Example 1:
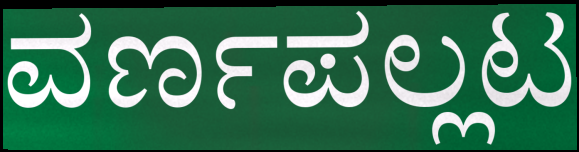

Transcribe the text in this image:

ವರ್ಣಪಲ್ಲಟ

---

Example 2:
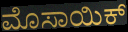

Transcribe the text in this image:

ಮೊಸಾಯಿಕ್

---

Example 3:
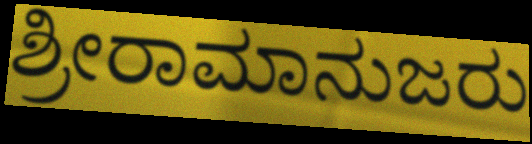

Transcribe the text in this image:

ಶ್ರೀರಾಮಾನುಜರು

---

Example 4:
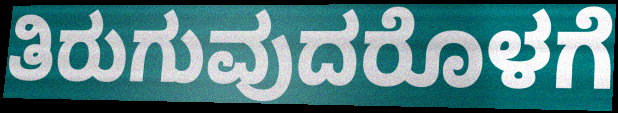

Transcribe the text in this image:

ತಿರುಗುವುದರೊಳಗೆ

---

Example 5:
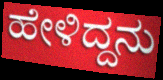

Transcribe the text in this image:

ಹೇಳಿದ್ದನು